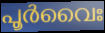
പൂർവൈഃ